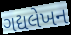
ગદ્યલેખન